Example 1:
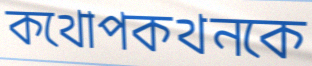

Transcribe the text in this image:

কথোপকথনকে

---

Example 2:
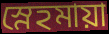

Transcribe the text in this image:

স্নেহমায়া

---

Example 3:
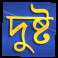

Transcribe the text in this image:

দুষ্ট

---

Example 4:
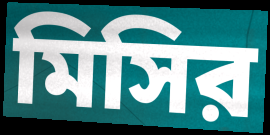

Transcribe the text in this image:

মিসির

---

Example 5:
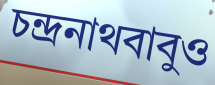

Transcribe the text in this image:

চন্দ্রনাথবাবুও